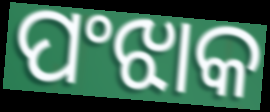
ପଂଝାକ